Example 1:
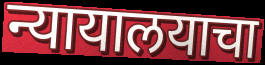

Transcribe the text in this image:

न्यायालयाचा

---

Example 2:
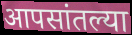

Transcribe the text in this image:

आपसांतल्या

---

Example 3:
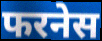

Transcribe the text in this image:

फरनेस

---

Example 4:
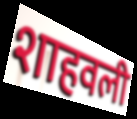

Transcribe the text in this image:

शाहवली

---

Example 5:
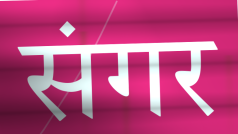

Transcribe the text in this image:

संगर